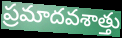
ప్రమాదవశాత్తు